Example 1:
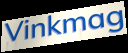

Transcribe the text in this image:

Vinkmag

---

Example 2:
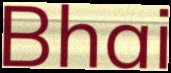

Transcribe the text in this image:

Bhai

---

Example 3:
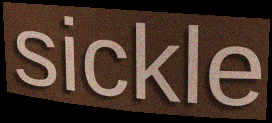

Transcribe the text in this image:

sickle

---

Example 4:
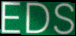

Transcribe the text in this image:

EDS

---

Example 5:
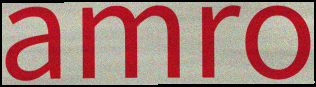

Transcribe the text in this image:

amro